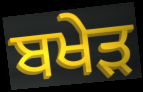
ਬਖੇੜ